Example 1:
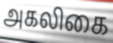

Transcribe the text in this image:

அகலிகை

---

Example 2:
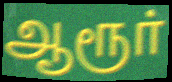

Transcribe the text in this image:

ஆரூர்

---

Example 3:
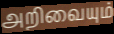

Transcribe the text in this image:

அறிவையும்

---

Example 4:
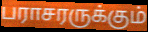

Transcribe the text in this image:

பராசரருக்கும்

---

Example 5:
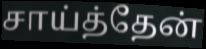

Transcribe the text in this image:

சாய்த்தேன்